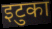
इटुका